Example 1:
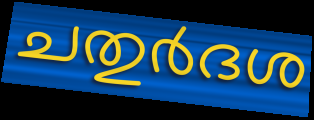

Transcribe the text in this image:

ചതുർദശ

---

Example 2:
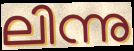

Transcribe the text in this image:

ലിന്നു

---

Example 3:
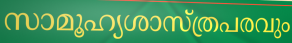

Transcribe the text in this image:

സാമൂഹ്യശാസ്ത്രപരവും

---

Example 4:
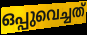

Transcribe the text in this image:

ഒപ്പുവെച്ചത്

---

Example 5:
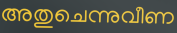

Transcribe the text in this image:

അതുചെന്നുവീണ